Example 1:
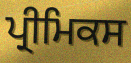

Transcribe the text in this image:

ਪ੍ਰੀਮਿਕਸ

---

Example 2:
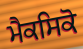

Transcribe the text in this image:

ਮੈਕਸਿਕੋ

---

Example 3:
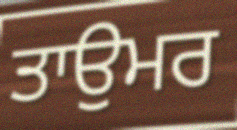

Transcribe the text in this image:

ਤਾਉਮਰ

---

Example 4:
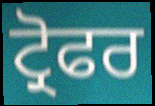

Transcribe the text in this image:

ਟ੍ਰੋਫਰ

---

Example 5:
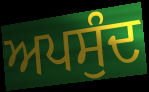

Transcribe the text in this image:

ਅਪਸੁੰਦ